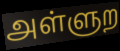
அள்ளுற